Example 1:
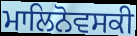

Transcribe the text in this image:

ਮਾਲਿਨੋਵਸਕੀ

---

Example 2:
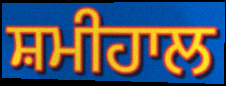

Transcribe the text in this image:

ਸ਼ਮੀਹਾਲ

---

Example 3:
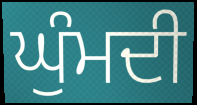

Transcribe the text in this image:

ਘੁੰਮਦੀ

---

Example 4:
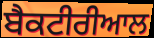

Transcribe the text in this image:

ਬੈਕਟੀਰੀਆਲ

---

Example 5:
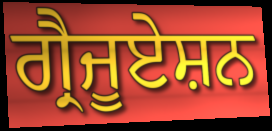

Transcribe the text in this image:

ਗ੍ਰੈਜੂਏਸ਼ਨ